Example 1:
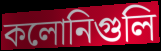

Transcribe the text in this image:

কলোনিগুলি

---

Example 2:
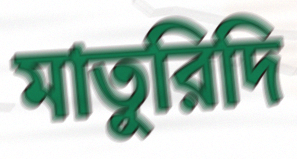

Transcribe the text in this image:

মাতুরিদি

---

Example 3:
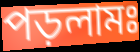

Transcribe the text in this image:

পড়লামঃ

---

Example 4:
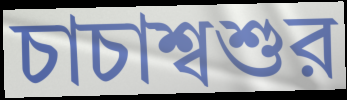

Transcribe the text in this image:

চাচাশ্বশুর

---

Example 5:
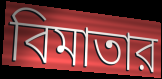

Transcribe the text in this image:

বিমাতার